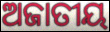
ଅଜାତୀୟ